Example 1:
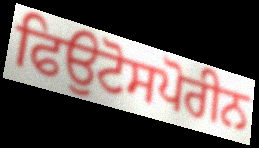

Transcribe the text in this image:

ਫਿਉਟੋਸਪੋਰੀਨ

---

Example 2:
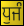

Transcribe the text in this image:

ਧੁਜੰ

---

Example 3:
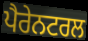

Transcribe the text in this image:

ਪੈਰੇਨਟਰਲ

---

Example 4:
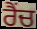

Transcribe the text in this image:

ਰੈਂਚ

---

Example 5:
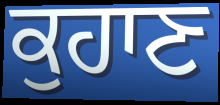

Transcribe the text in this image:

ਕੁਹਾਣ